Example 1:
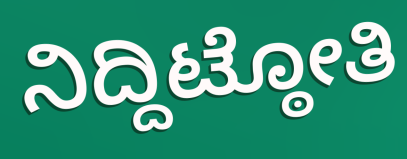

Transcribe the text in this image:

ನಿದ್ದಿಟ್ಠೋತಿ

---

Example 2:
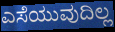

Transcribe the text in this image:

ಎಸೆಯುವುದಿಲ್ಲ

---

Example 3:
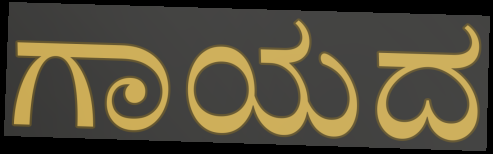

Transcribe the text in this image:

ಗಾಯದ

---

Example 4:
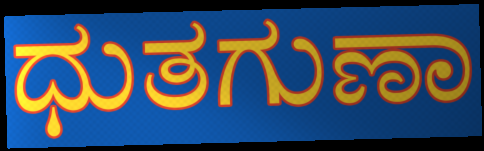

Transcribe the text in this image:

ಧುತಗುಣಾ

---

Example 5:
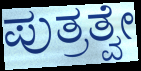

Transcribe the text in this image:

ಪುತ್ರತ್ವೇ